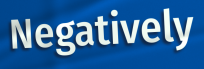
Negatively